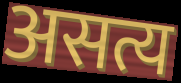
असत्य